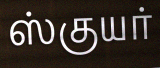
ஸ்குயர்